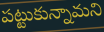
పట్టుకున్నామని